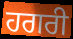
ਹਗਰੀ